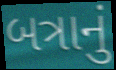
બત્રાનું